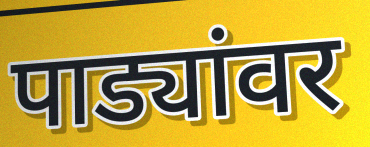
पाड्यांवर